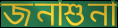
জনাশুনা